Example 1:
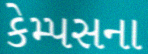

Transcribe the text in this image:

કેમ્પસના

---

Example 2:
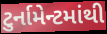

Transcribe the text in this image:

ટુર્નામેન્ટમાંથી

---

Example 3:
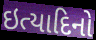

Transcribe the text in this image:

ઇત્યાદિનો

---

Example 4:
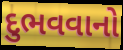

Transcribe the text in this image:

દુભવવાનો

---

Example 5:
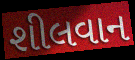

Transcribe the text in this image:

શીલવાન